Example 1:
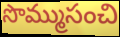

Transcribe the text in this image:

సొమ్ముసంచి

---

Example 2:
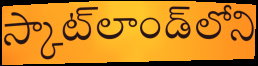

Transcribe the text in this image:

స్కాట్‌లాండ్‌లోని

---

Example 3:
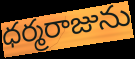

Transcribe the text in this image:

ధర్మరాజును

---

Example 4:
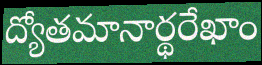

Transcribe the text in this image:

ద్యోతమానార్థరేఖాం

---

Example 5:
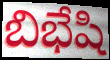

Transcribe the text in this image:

బిభేషి